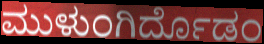
ಮುಳುಂಗಿರ್ದೊಡಂ